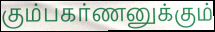
கும்பகர்ணனுக்கும்